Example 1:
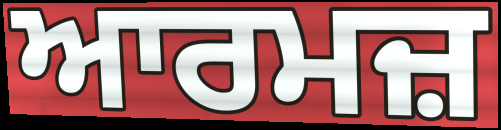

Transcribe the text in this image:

ਆਰਮਜ਼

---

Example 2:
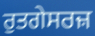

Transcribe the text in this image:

ਰੁਤਗੇਸਰਜ਼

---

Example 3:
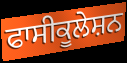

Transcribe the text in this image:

ਫਾਸੀਕੂਲੇਸ਼ਨ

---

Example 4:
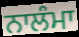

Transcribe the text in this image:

ਨਾਲੰਮਾ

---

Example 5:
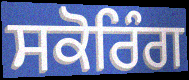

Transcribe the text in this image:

ਸਕੋਰਿੰਗ